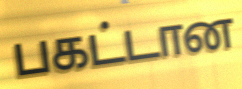
பகட்டான